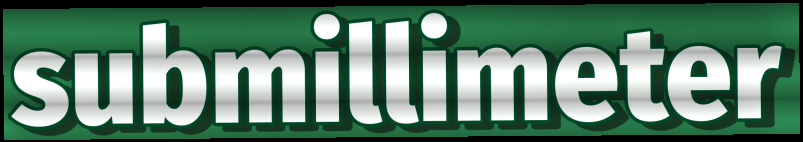
submillimeter